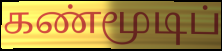
கண்மூடிப்